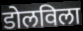
डोलविला